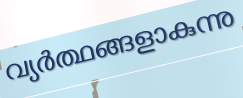
വ്യർത്ഥങ്ങളാകുന്നു